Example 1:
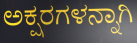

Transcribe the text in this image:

ಅಕ್ಷರಗಳನ್ನಾಗಿ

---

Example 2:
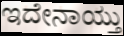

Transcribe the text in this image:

ಇದೇನಾಯ್ತು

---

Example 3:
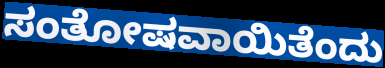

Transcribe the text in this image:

ಸಂತೋಷವಾಯಿತೆಂದು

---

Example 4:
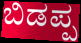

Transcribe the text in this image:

ಬಿಡಪ್ಪ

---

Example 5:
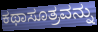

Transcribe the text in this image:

ಕಥಾಸೂತ್ರವನ್ನು